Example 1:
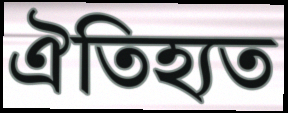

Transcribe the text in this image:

ঐতিহ্যত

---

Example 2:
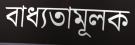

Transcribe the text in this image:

বাধ্যতামূলক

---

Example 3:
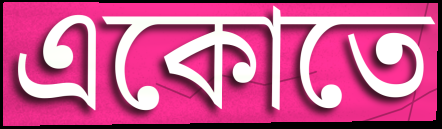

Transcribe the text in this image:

একোতে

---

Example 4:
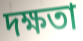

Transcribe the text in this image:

দক্ষতা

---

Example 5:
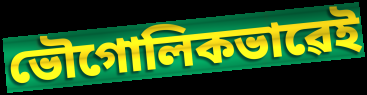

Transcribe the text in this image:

ভৌগোলিকভাৱেই